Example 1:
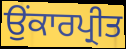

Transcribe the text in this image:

ਉਂਕਾਰਪ੍ਰੀਤ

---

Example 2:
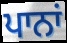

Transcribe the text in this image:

ਪਾਨਾਂ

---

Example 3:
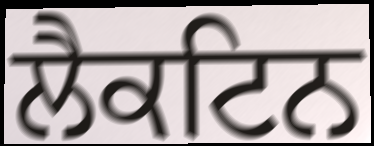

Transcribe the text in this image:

ਲੈਕਟਿਨ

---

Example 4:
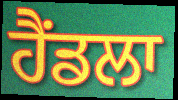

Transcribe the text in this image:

ਹੈਂਡਲਾ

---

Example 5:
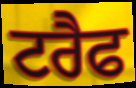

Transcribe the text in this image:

ਟਰੈਫ